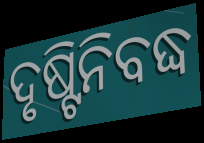
ଦୃଷ୍ଟିନିବଦ୍ଧ